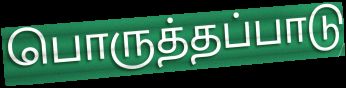
பொருத்தப்பாடு